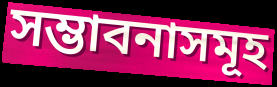
সম্ভাবনাসমূহ